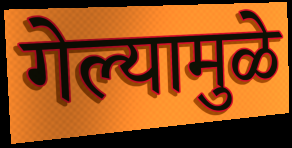
गेल्यामुळे